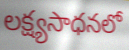
లక్ష్యసాధనలో